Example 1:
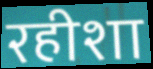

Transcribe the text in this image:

रहीशा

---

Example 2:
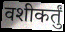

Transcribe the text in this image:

वशीकर्तुं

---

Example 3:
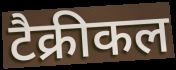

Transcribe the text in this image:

टैक्रीकल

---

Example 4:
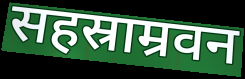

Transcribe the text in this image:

सहस्राम्रवन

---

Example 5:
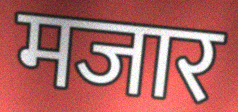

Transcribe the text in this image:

मजार